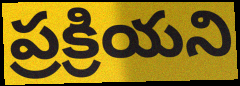
ప్రక్రియని